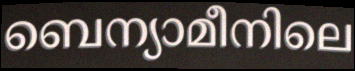
ബെന്യാമീനിലെ